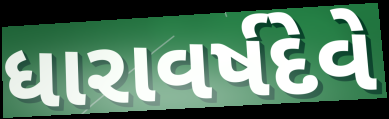
ધારાવર્ષદેવે